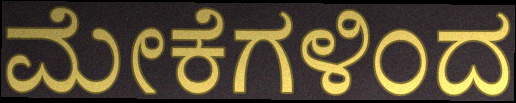
ಮೇಕೆಗಳಿಂದ